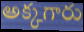
అక్కగారు